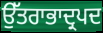
ਉੱਤਰਾਭਾਦ੍ਰਪਦ